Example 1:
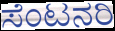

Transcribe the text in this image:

ಸೆಂಟನರಿ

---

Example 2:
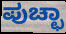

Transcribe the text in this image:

ಪುಚ್ಛಾ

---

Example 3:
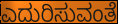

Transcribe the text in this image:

ಎದುರಿಸುವಂತೆ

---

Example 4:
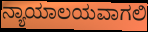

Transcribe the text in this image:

ನ್ಯಾಯಾಲಯವಾಗಲಿ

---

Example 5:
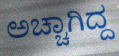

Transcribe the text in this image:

ಅಚ್ಚಾಗಿದ್ದ